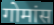
गोमांस